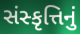
સંસ્કૃત્તિનું